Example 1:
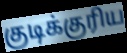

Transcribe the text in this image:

குடிக்குரிய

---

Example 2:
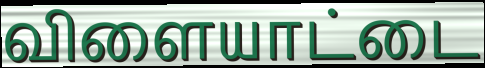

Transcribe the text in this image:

விளையாட்டை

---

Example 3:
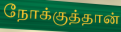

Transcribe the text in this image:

நோக்குத்தான்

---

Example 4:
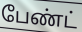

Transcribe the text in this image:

பேண்ட்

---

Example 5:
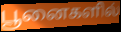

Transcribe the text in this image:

பூனைகளில்